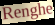
Renghe